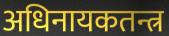
अधिनायकतन्त्र